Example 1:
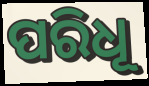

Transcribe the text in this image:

ପରିଧୂ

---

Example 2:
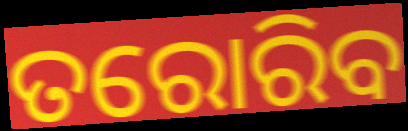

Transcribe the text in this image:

ତରୋରିବ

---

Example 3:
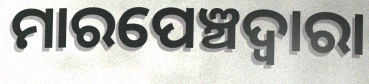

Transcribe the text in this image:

ମାରପେଞ୍ଚଦ୍ବାରା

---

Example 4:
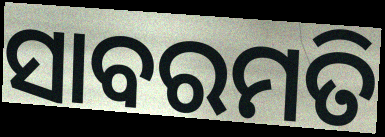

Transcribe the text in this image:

ସାବରମତି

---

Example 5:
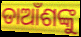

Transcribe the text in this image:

ଡାଆଁଶଙ୍କୁ